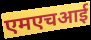
एमएचआई